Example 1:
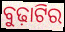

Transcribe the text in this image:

ବୁଢ଼ାଟିର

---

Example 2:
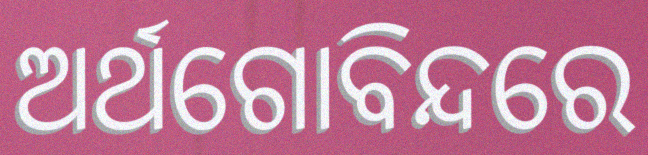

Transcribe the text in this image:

ଅର୍ଥଗୋବିନ୍ଦରେ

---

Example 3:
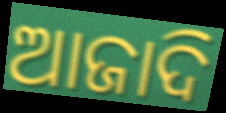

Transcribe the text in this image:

ଆଜାଦି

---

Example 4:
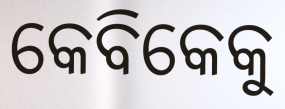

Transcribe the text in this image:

କେବିକେକୁ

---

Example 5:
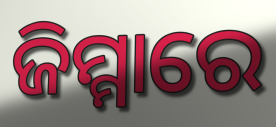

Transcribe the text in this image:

ଜିମ୍ମାରେ